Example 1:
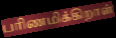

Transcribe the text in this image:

பரிணமிக்கிறாள்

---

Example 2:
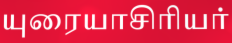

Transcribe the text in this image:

யுரையாசிரியர்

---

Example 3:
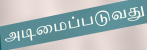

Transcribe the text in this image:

அடிமைப்படுவது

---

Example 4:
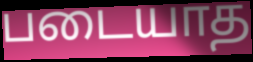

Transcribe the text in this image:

படையாத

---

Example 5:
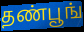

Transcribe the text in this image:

தண்பூங்